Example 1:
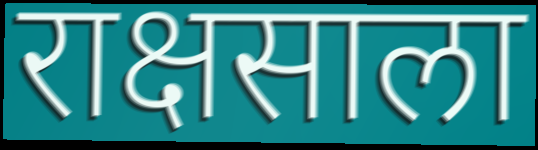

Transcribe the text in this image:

राक्षसाला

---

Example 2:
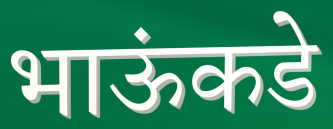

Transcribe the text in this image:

भाऊंकडे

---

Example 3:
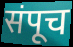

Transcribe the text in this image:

संपूच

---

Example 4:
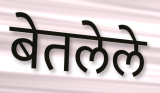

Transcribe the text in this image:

बेतलेले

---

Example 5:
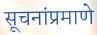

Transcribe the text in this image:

सूचनांप्रमाणे